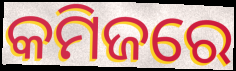
କମିଜରେ